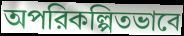
অপরিকল্পিতভাবে